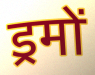
ड्रमों